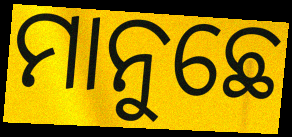
ମାନୁଛେ